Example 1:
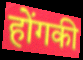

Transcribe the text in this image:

होंगकी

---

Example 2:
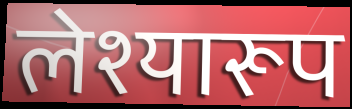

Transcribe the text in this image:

लेश्यारूप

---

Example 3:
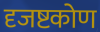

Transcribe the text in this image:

दृजष्टकोण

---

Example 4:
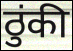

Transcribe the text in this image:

ठुंकी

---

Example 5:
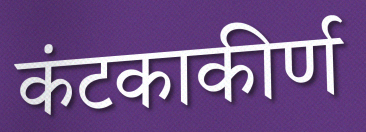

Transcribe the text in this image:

कंटकाकीर्ण